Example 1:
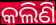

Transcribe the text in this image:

କଲିଣି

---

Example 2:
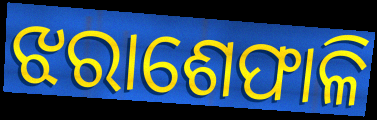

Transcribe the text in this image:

ଝରାଶେଫାଳି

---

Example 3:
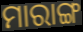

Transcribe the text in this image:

ମାରାଙ୍ଗ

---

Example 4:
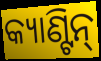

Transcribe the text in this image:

କ୍ୟାଣ୍ଟିନ୍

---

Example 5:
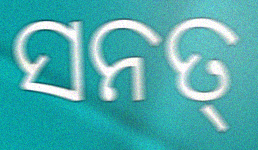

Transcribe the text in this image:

ସନତ୍